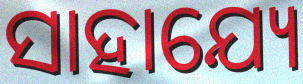
ସାହାଯ୍ୟେ